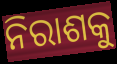
ନିରାଶକୁ